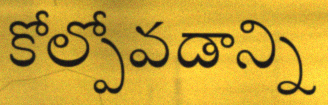
కోల్పోవడాన్ని